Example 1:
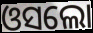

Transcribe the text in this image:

ଓସଲୋ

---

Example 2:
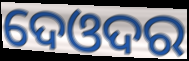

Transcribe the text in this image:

ଦେଓଦର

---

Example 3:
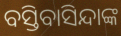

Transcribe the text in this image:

ବସ୍ତିବାସିନ୍ଦାଙ୍କ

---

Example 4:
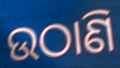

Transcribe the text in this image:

ଉଠାଣି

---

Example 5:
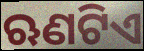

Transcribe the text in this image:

ଋଣଟିଏ